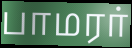
பாமரர்